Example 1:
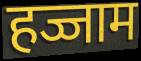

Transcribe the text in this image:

हज्जाम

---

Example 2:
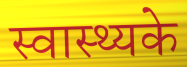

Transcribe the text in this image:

स्वास्थ्यके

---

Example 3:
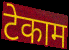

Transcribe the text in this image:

टेकाम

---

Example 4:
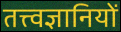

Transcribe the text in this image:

तत्त्वज्ञानियों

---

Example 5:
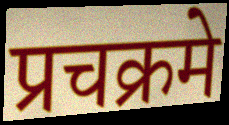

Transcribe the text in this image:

प्रचक्रमे